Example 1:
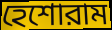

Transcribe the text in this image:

হেশোরাম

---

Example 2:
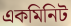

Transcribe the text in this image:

একমিনিট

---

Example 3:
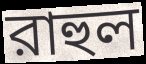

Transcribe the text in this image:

রাহুল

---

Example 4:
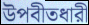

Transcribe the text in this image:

উপবীতধারী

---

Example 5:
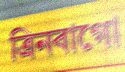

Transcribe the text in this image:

ত্রিনবাগো